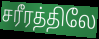
சரீரத்திலே